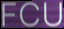
FCU